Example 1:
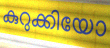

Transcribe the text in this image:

കുറുക്കിയോ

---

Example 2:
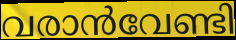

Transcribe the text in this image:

വരാൻവേണ്ടി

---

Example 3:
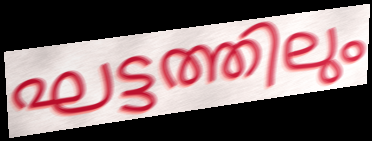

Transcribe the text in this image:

ഘട്ടത്തിലും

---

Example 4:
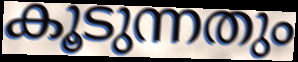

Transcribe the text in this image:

കൂടുന്നതും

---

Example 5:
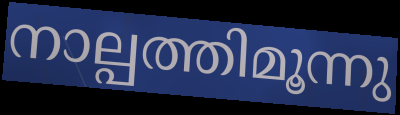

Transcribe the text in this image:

നാല്പത്തിമൂന്നു